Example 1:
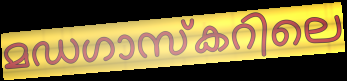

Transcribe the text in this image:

മഡഗാസ്കറിലെ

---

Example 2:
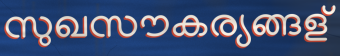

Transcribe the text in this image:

സുഖസൗകര്യങ്ങള്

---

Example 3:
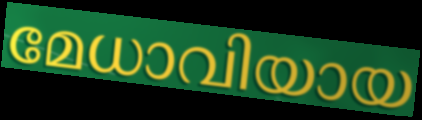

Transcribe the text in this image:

മേധാവിയായ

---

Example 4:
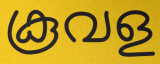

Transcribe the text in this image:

കൂവള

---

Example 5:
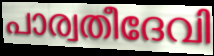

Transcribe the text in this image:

പാര്വതീദേവി